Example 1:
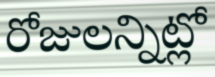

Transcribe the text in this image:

రోజులన్నిట్లో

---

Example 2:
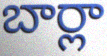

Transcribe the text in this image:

బార్లా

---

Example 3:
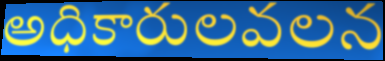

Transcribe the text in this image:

అధికారులవలన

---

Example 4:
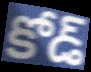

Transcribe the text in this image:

కోడ్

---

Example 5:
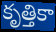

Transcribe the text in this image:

కృత్తికా